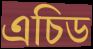
এচিড